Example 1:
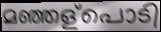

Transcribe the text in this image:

മഞ്ഞള്പൊടി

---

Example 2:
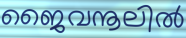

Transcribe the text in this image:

ജൈവനൂലിൽ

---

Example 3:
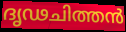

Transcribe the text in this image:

ദൃഢചിത്തൻ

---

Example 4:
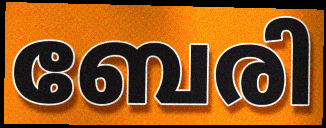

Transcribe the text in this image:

ബേരി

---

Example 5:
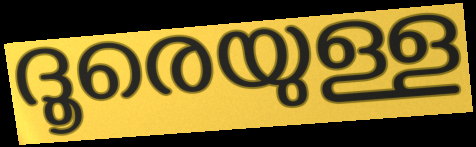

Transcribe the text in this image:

ദൂരെയുള്ള